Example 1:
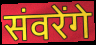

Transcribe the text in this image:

संवरेंगे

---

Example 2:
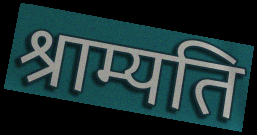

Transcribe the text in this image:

श्राम्यति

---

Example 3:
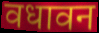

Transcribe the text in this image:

वधावन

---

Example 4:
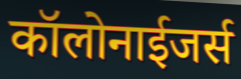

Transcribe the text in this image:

कॉलोनाईजर्स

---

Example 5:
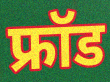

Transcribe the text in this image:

फ्रॉड